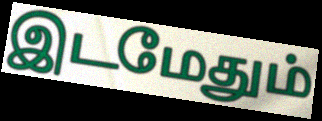
இடமேதும்